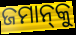
ଜମାନ୍‍କୁ